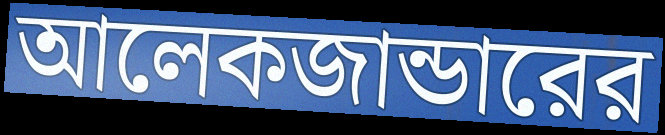
আলেকজান্ডারের